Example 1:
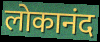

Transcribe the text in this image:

लोकानंद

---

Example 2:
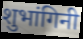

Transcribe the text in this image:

शुभांगिनी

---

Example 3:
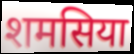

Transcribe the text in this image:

शमसिया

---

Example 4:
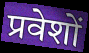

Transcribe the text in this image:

प्रवेशों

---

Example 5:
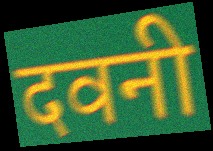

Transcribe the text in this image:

दवनी